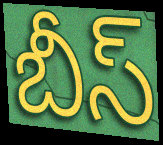
బీస్